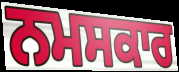
ਨਮਸਕਾਰ